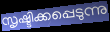
സൃഷ്ടിക്കപ്പെടുന്നു